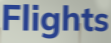
Flights